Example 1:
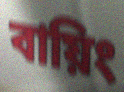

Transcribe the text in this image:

বায়িং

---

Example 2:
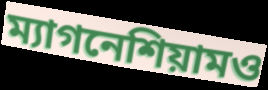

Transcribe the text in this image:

ম্যাগনেশিয়ামও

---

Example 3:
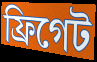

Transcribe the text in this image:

ফ্রিগেট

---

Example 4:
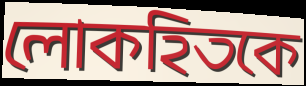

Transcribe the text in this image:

লোকহিতকে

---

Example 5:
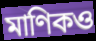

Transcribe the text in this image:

মাণিকও